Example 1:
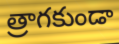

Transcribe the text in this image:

త్రాగకుండా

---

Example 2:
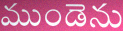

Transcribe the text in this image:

ముండెను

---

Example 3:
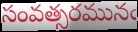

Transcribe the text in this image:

సంవత్సరమునఁ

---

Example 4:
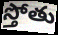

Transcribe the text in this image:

స్తోతు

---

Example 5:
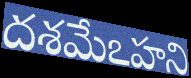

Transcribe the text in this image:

దశమేఽహని